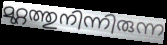
മുറ്റത്തുനിന്നിരുന്ന